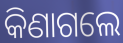
କିଣାଗଲେ